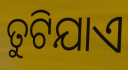
ତୁଟିଯାଏ